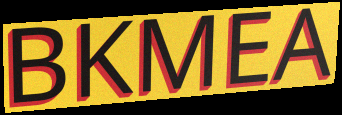
BKMEA